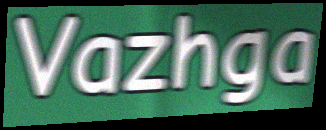
Vazhga